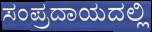
ಸಂಪ್ರದಾಯದಲ್ಲಿ